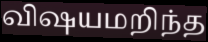
விஷயமறிந்த